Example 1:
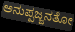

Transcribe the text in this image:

ಅನುಪ್ಪಜ್ಜನತೋ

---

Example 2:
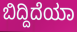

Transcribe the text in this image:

ಬಿದ್ದಿದೆಯಾ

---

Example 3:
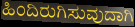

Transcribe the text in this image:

ಹಿಂದಿರುಗಿಸುವುದಾಗಿ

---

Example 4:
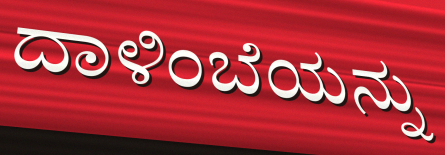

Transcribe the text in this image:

ದಾಳಿಂಬೆಯನ್ನು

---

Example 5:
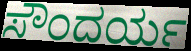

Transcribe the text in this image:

ಸೌಂದರ್ಯ